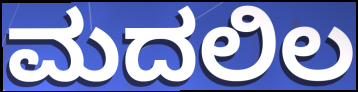
ಮದಲಿಲ